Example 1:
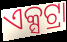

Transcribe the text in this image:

ଏକ୍ସଟ୍ରା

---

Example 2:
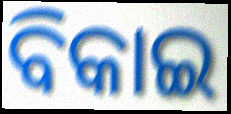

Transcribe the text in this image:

ବିକାଇ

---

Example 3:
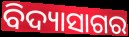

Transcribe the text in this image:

ବିଦ୍ୟାସାଗର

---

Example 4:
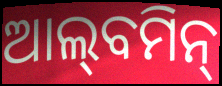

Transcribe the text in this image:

ଆଲ୍‌ବମିନ୍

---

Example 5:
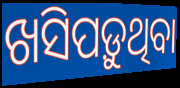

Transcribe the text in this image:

ଖସିପଡ଼ୁଥିବା